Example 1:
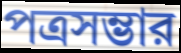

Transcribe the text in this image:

পত্রসম্ভার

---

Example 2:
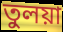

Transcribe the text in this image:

তুলয়া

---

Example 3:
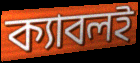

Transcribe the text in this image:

ক্যাবলই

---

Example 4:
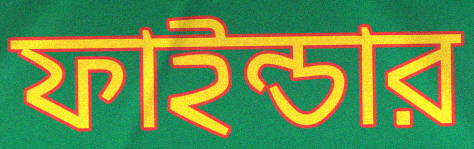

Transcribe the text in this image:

ফাইন্ডার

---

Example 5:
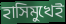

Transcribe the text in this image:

হাসিমুখেই